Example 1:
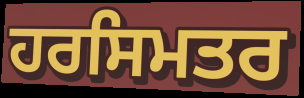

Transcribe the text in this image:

ਹਰਸਿਮਤਰ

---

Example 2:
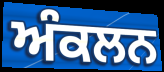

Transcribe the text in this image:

ਅੰਕਲਨ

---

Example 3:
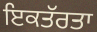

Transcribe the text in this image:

ਇਕਤੱਰਤਾ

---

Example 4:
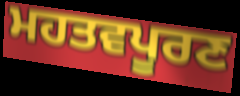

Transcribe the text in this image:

ਮਹਤਵਪੂਰਣ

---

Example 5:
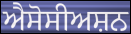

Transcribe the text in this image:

ਐਸੋਸੀਅਸ਼ਨ